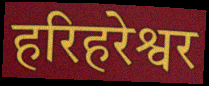
हरिहरेश्वर